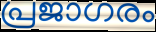
പ്രജാഗരം